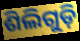
ଶିଲିଗୁଡ଼ି